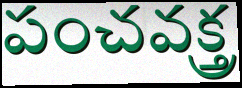
పంచవక్త్ర